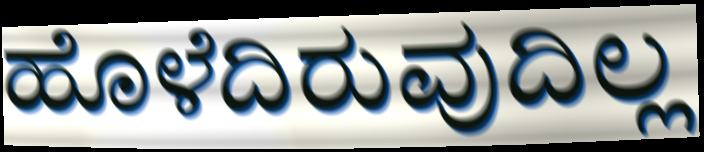
ಹೊಳೆದಿರುವುದಿಲ್ಲ